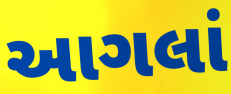
આગલાં